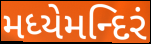
મધ્યેમન્દિરં